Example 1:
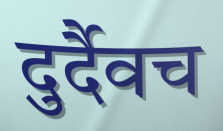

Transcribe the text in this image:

दुर्दैवच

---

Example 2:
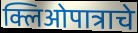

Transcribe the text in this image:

क्लिओपात्राचे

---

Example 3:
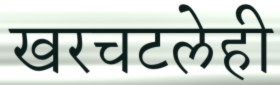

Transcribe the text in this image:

खरचटलेही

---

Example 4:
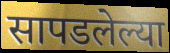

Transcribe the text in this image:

सापडलेल्या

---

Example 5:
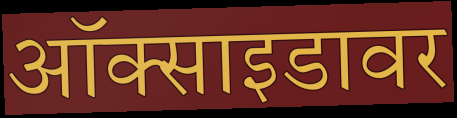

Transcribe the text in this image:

ऑक्साइडावर